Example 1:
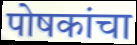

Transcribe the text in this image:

पोषकांचा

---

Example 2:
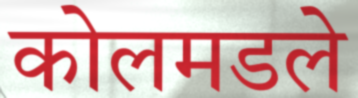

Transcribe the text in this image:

कोलमडले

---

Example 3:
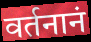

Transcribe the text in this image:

वर्तनानं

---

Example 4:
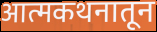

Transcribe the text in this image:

आत्मकथनातून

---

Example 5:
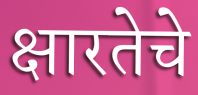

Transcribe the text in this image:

क्षारतेचे